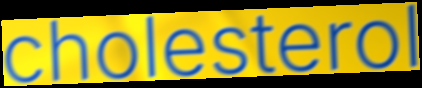
cholesterol